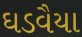
ઘડવૈયા